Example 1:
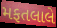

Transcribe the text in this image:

મફતલાલે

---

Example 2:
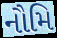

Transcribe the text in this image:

નૌમિ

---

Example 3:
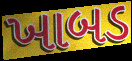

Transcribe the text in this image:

ખાબડ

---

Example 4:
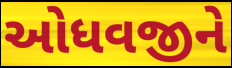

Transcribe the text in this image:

ઓધવજીને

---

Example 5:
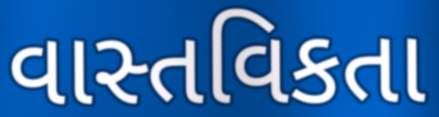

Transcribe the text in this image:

વાસ્તવિકતા